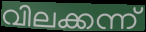
വിലക്കന്ന്